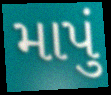
માપું